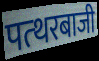
पत्‍थरबाजी